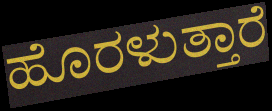
ಹೊರಳುತ್ತಾರೆ